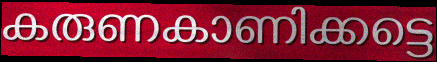
കരുണകാണിക്കട്ടെ